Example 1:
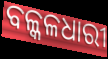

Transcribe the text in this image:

ବଳ୍କଳଧାରୀ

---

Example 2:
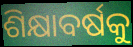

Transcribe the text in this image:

ଶିକ୍ଷାବର୍ଷକୁ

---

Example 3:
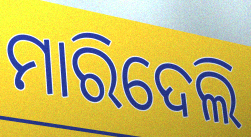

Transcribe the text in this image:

ମାରିଦେଲି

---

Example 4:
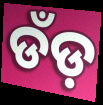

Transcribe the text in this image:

ଡଁଡ଼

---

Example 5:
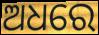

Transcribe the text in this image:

ଅଧରେ